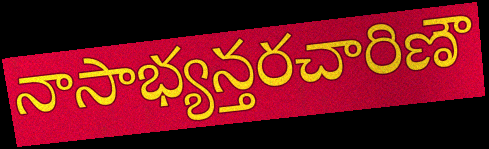
నాసాభ్యన్తరచారిణౌ